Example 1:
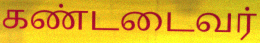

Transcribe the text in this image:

கண்டடைவர்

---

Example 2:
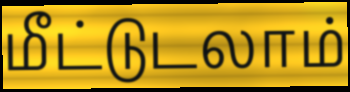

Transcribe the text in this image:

மீட்டுடலாம்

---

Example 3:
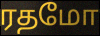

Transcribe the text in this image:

ரதமோ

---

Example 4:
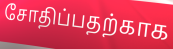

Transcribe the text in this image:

சோதிப்பதற்காக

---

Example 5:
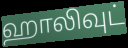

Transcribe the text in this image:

ஹாலிவுட்